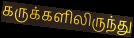
கருக்களிலிருந்து